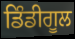
ਡਿੰਡੀਗੂਲ